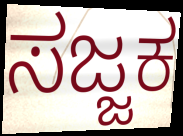
ಸಜ್ಜಕ